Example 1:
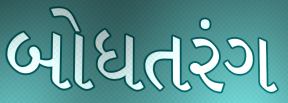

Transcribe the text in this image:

બોધતરંગ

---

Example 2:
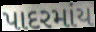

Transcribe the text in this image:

પાદરમાંય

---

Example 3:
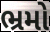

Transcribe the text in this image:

ભ્રમો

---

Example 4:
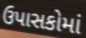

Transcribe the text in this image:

ઉપાસકોમાં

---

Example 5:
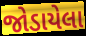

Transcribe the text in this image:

જોડાયેલા